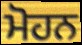
ਮੋਹਨ